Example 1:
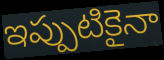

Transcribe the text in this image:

ఇప్పుటికైనా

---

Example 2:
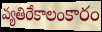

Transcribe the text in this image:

వ్యతిరేకాలంకారం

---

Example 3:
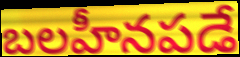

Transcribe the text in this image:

బలహీనపడే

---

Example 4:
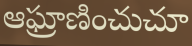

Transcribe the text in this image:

ఆఘ్రాణించుచూ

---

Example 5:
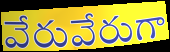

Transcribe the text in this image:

వేరువేరుగా